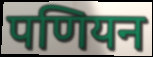
पणियन